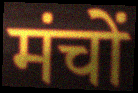
मंचों